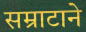
सम्राटाने